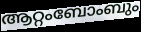
ആറ്റംബോംബും